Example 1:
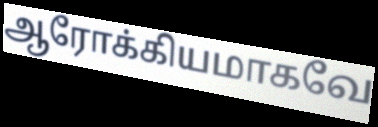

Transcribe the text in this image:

ஆரோக்கியமாகவே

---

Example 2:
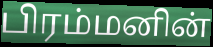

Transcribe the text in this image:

பிரம்மனின்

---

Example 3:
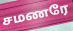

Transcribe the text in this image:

சமணரே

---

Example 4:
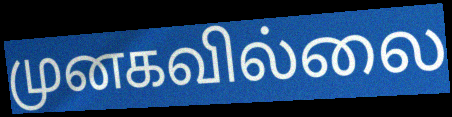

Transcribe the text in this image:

முனகவில்லை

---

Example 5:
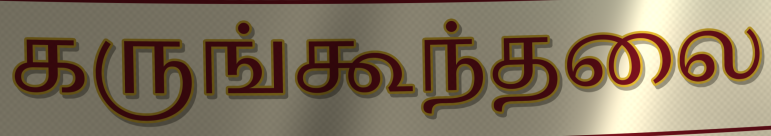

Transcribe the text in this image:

கருங்கூந்தலை